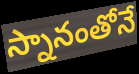
స్నానంతోనే